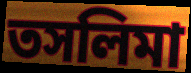
তসলিমা